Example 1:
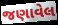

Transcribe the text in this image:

જણાવેલ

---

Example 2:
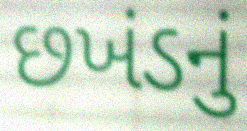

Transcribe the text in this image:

છખંડનું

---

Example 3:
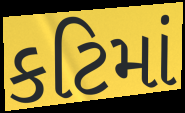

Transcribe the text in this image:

કટિમાં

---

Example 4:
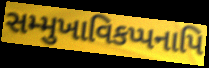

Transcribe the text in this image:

સમ્મુખાવિકપ્પનાપિ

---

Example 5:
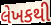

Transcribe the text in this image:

લેખકથી